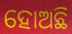
ହୋଅଛି